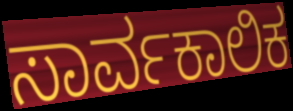
ಸಾರ್ವಕಾಲಿಕ